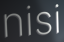
nisi